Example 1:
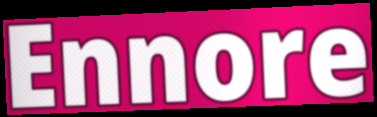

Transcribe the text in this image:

Ennore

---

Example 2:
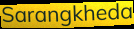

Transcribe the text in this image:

Sarangkheda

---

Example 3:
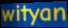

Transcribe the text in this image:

wityan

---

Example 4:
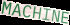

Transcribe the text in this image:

MACHINE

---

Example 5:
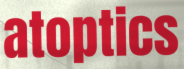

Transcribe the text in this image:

atoptics